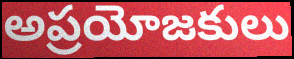
అప్రయోజకులు